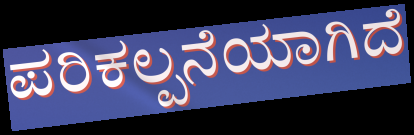
ಪರಿಕಲ್ಪನೆಯಾಗಿದೆ